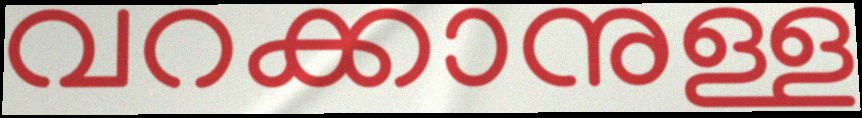
വറക്കാനുള്ള